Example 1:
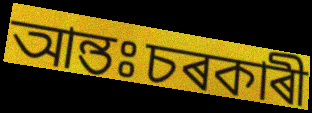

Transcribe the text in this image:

আন্তঃচৰকাৰী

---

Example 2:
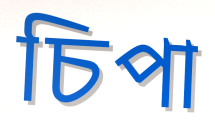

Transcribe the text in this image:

চিপা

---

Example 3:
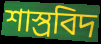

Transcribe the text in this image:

শাস্ত্ৰবিদ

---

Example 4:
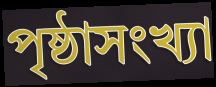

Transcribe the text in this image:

পৃষ্ঠাসংখ্যা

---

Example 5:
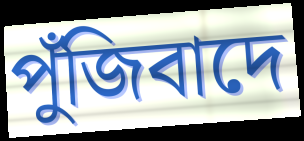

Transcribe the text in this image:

পুঁজিবাদে